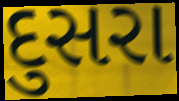
દુસરા